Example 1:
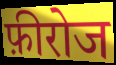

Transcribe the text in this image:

फ़ीरोज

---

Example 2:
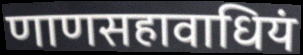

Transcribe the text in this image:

णाणसहावाधियं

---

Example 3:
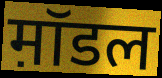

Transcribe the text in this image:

म़ॉडल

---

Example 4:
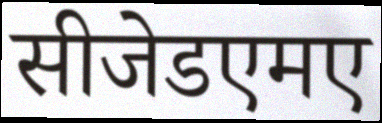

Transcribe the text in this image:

सीजेडएमए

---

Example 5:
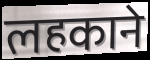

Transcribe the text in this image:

लहकाने